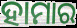
ହାମାର